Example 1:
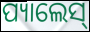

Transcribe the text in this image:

ପ୍ୟାଲେସ୍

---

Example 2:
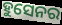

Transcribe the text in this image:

ହୁସେନର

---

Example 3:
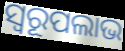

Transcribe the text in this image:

ସ୍ବରୂପଲାଭ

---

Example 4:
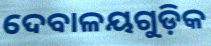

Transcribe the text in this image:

ଦେବାଳୟଗୁଡ଼ିକ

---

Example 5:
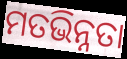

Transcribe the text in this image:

ମତଭିନ୍ନତା